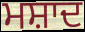
ਮਸ਼ਾਦ